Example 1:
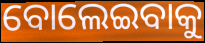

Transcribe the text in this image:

ବୋଲେଇବାକୁ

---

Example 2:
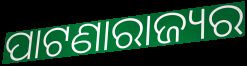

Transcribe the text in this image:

ପାଟଣାରାଜ୍ୟର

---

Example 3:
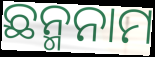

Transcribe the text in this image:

ଛନ୍ମନାମ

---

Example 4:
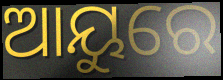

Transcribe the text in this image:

ଆୟୁରେ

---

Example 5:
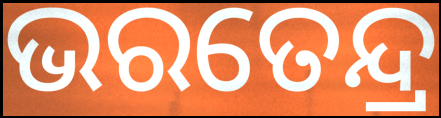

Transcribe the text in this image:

ଭରତେନ୍ଦ୍ର